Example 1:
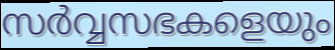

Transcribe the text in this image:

സർവ്വസഭകളെയും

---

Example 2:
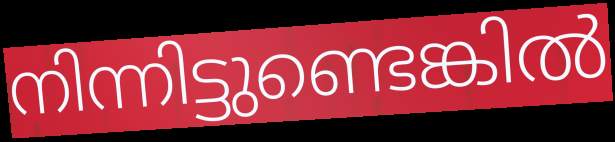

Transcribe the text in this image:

നിന്നിട്ടുണ്ടെങ്കിൽ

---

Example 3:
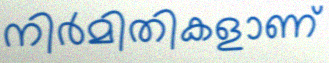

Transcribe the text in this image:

നിർമിതികളാണ്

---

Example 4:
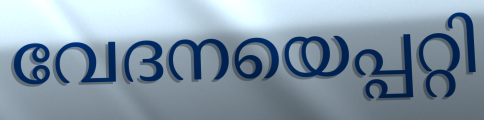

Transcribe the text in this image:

വേദനയെപ്പറ്റി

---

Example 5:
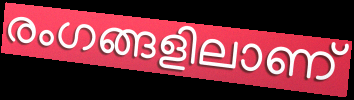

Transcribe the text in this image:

രംഗങ്ങളിലാണ്